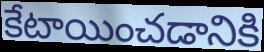
కేటాయించడానికి